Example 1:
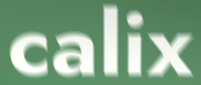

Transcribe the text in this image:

calix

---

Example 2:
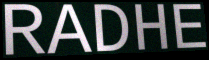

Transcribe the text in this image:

RADHE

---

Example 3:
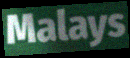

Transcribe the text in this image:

Malays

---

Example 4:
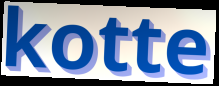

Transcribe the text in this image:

kotte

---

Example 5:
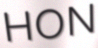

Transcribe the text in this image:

HON